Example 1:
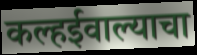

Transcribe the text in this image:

कल्हईवाल्याचा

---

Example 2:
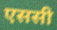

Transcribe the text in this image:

एससी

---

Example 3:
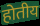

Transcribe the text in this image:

होतीय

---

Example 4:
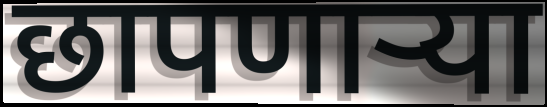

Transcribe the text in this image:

छापणाऱ्या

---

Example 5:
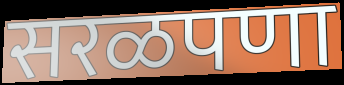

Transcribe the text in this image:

सरळपणा